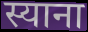
स्याना